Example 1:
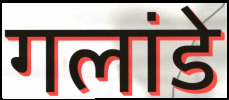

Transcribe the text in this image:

गलांडे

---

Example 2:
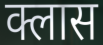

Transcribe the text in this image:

क्लास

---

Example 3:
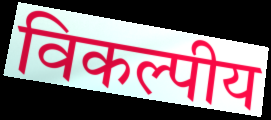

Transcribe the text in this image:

विकल्पीय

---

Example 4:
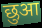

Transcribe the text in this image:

छुआ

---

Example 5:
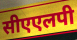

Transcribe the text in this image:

सीएएलपी